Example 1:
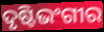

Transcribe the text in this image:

ଦୃଷ୍ଟିଭଂଗୀର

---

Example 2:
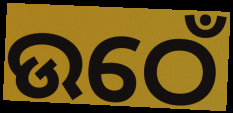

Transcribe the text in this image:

ଉଠେଁ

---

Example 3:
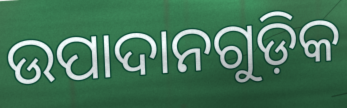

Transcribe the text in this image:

ଉପାଦାନଗୁଡ଼ିକ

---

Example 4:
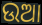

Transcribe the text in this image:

ଉଆ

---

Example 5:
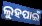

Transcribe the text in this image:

ଲୁହପାଇଁ